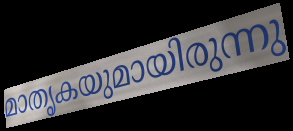
മാതൃകയുമായിരുന്നു